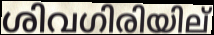
ശിവഗിരിയില്